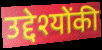
उद्देश्योंकी